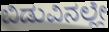
ಬಿಡುವಿನಲ್ಲೇ